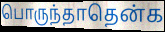
பொருந்தாதென்க